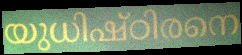
യുധിഷ്ഠിരനെ